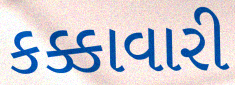
કક્કાવારી